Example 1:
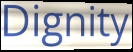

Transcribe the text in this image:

Dignity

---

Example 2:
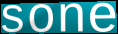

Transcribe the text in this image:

sone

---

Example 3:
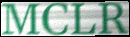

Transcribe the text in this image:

MCLR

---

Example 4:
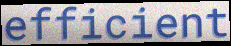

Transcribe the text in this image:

efficient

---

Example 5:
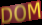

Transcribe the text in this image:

DOM